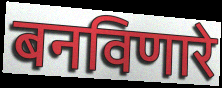
बनविणारे